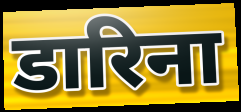
डारिना